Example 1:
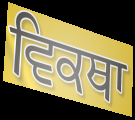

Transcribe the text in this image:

ਵਿਕਥਾ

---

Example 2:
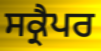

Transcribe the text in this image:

ਸਕ੍ਰੈਪਰ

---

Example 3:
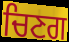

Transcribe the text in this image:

ਚਿਣਗ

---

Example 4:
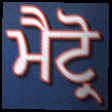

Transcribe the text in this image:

ਮੈਟ੍ਰੋ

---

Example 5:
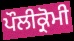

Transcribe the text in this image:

ਪੌਲੀਕ੍ਰੋਮੀ